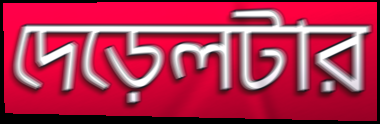
দেড়েলটার